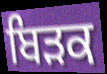
ਬਿੜਕ